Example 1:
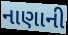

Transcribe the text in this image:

નાણાની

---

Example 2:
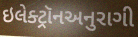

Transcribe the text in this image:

ઇલેક્ટ્રૉનઅનુરાગી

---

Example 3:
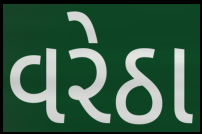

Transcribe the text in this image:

વરેઠા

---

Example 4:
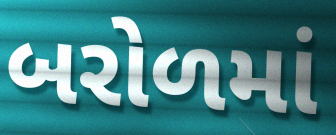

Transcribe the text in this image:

બરોળમાં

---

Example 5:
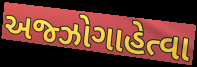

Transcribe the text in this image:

અજ્ઝોગાહેત્વા